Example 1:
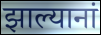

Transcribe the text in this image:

झाल्यानां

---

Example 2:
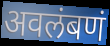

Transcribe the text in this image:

अवलंबणं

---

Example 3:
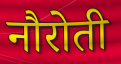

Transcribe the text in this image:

नौरोती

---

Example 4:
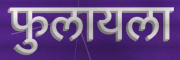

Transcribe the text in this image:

फुलायला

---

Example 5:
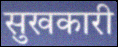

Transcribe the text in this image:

सुखकारी